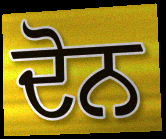
ਦੋਨ